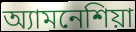
অ্যামনেশিয়া